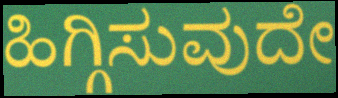
ಹಿಗ್ಗಿಸುವುದೇ